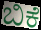
ಬಿಕೆ